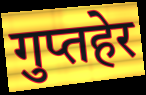
गुप्तहेर